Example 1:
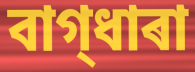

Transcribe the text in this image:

বাগ্‌ধাৰা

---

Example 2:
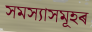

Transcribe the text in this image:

সমস্যাসমূহৰ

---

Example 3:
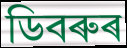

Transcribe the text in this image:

ডিবৰুৰ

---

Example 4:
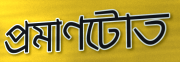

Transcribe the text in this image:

প্ৰমাণটোত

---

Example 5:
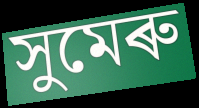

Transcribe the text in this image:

সুমেৰু